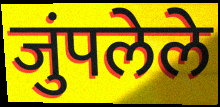
जुंपलेले